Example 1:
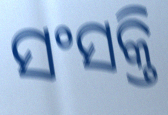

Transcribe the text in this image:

ସଂସକ୍ତି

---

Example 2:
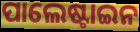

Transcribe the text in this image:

ପାଲେଷ୍ଟାଇନ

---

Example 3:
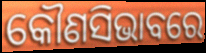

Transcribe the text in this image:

କୌଣସିଭାବରେ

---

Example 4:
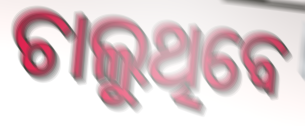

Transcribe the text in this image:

ଚାଲୁଥିବେ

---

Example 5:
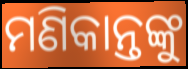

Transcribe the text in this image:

ମଣିକାନ୍ତଙ୍କୁ